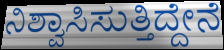
ನಿಶ್ವಾಸಿಸುತ್ತಿದ್ದೇನೆ